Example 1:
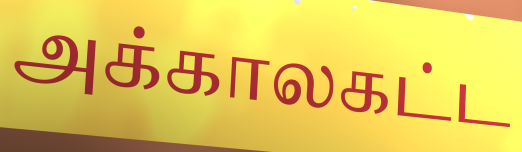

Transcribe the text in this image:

அக்காலகட்ட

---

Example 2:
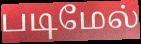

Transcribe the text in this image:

படிமேல்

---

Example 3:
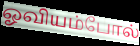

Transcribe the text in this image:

ஓவியம்போல்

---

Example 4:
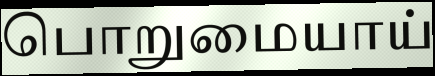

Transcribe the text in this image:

பொறுமையாய்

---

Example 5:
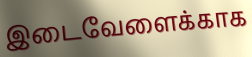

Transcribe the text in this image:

இடைவேளைக்காக